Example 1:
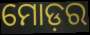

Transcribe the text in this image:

ମୋଡ଼ର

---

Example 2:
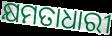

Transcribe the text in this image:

କ୍ଷମତାଧାରୀ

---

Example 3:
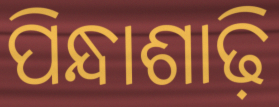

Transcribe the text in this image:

ପିନ୍ଧାଶାଢ଼ି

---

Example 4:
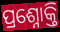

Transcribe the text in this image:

ପ୍ରଶ୍ନୋକ୍ତି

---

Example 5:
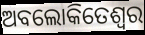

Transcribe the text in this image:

ଅବଲୋକିତେଶ୍ୱର